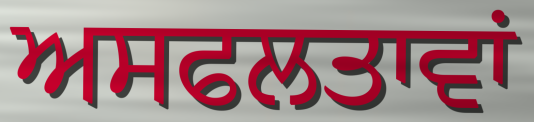
ਅਸਫਲਤਾਵਾਂ